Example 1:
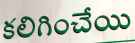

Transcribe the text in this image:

కలిగించేయి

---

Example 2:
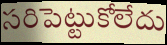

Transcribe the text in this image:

సరిపెట్టుకోలేదు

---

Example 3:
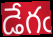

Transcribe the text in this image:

డేగఁ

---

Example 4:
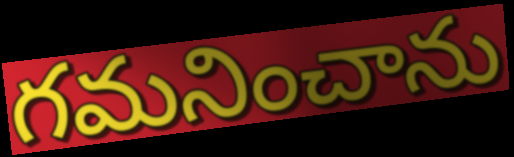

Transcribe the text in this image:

గమనించాను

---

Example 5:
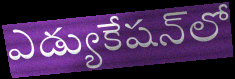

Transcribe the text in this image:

ఎడ్యుకేషన్‌లో